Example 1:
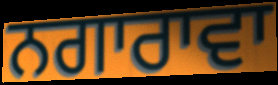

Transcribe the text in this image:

ਨਗਾਰਾਵਾ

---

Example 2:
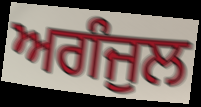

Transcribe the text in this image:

ਅਗੰਜੁਲ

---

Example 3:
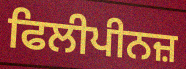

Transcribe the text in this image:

ਫਿਲੀਪੀਨਜ਼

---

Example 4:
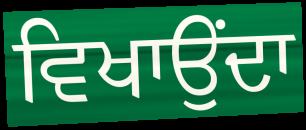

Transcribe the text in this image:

ਵਿਖਾਉਂਦਾ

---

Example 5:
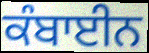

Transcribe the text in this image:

ਕੰਬਾਈਨ